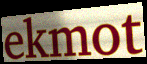
ekmot